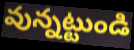
వున్నట్టుండి